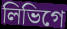
লিভিগে